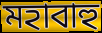
মহাবাহু